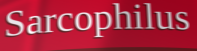
Sarcophilus